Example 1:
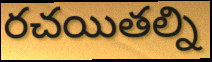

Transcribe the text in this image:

రచయితల్ని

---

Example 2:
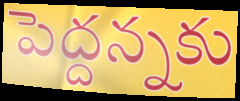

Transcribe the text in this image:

పెద్దన్నకు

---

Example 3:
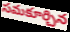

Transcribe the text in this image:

సమకూర్చిన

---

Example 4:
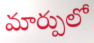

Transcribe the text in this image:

మార్పులో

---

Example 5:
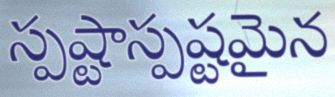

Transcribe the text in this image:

స్పష్టాస్పష్టమైన